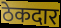
ठेकदार